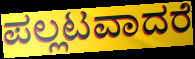
ಪಲ್ಲಟವಾದರೆ